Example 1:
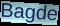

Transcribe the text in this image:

Bagde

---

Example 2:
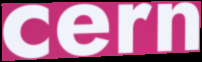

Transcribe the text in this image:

cern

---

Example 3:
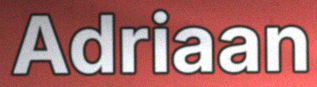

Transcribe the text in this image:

Adriaan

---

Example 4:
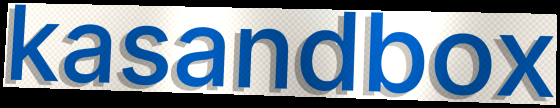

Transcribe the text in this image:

kasandbox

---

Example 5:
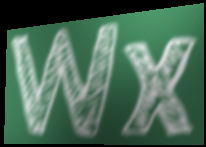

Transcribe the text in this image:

Wx